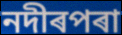
নদীৰপৰা